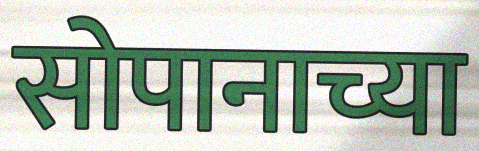
सोपानाच्या